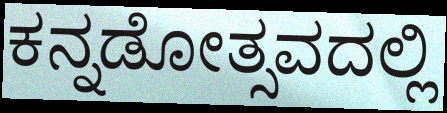
ಕನ್ನಡೋತ್ಸವದಲ್ಲಿ